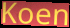
Koen